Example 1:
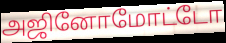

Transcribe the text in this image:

அஜினோமோட்டோ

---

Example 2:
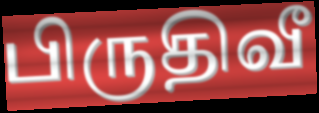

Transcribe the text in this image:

பிருதிவீ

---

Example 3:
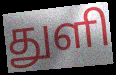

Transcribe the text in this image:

துளி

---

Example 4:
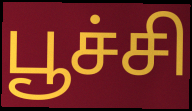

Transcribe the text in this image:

பூச்சி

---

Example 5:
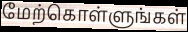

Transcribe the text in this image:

மேற்கொள்ளுங்கள்